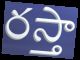
రస్తా